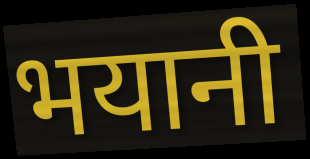
भयानी